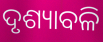
ଦୃଶ୍ୟାବଳି